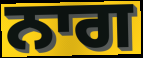
ਨਾਗ